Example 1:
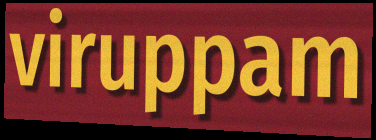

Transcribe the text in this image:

viruppam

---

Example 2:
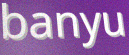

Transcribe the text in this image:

banyu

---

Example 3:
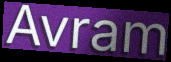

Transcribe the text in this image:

Avram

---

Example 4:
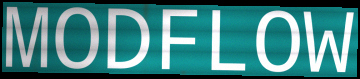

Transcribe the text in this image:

MODFLOW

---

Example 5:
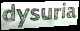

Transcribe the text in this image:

dysuria